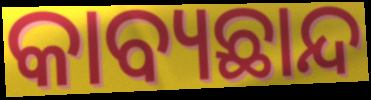
କାବ୍ୟଛାନ୍ଦ